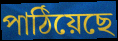
পাঠিয়েছে